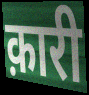
क़ारी